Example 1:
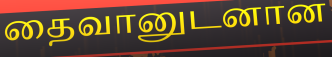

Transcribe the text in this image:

தைவானுடனான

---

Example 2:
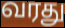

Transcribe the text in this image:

வரது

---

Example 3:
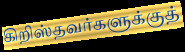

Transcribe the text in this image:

கிறிஸ்தவர்களுக்குத்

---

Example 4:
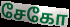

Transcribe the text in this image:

சேகோ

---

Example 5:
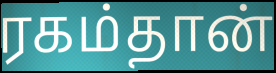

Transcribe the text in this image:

ரகம்தான்